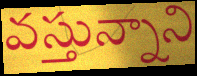
వస్తున్నాని